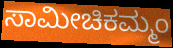
ಸಾಮೀಚಿಕಮ್ಮಂ